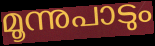
മൂന്നുപാടും